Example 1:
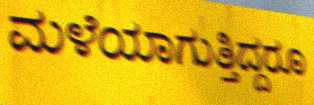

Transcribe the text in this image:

ಮಳೆಯಾಗುತ್ತಿದ್ದರೂ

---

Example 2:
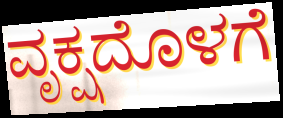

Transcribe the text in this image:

ವೃಕ್ಷದೊಳಗೆ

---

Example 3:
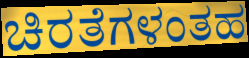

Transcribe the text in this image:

ಚಿರತೆಗಳಂತಹ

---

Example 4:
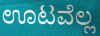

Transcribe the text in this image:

ಊಟವೆಲ್ಲ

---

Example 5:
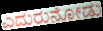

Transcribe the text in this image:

ಎದುರುನೋಡು